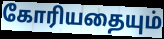
கோரியதையும்